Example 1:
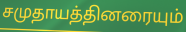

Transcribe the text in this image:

சமுதாயத்தினரையும்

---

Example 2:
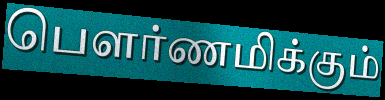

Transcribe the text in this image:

பௌர்ணமிக்கும்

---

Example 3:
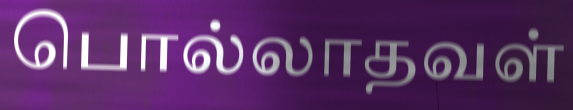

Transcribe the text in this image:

பொல்லாதவள்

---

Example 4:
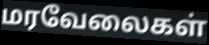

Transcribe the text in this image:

மரவேலைகள்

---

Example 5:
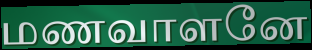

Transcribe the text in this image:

மணவாளனே